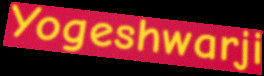
Yogeshwarji